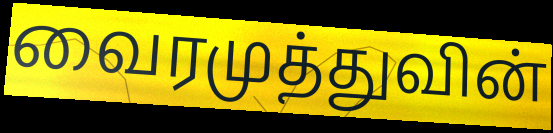
வைரமுத்துவின்